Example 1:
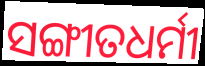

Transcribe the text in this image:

ସଙ୍ଗୀତଧର୍ମୀ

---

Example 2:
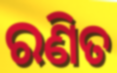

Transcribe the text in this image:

ରଣିତ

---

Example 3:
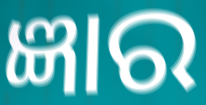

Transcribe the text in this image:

ଜ୍ଞାର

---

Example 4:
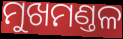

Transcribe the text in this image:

ମୁଖମଣ୍ତଳ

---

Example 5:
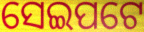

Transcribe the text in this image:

ସେଇପଟେ